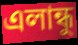
এলান্ধু